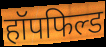
हॉपफिल्ड